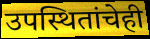
उपस्थितांचेही